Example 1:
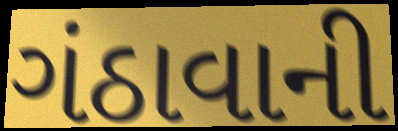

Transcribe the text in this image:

ગંઠાવાની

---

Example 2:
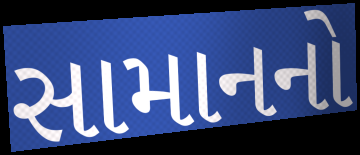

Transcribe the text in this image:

સામાનનો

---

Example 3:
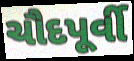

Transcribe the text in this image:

ચૌદપૂર્વી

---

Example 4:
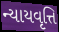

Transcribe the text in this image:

ન્યાયવૃત્તિ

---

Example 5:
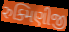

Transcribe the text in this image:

રુક્મિણીજી